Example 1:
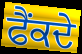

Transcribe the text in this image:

ਫੈਂਕਦੇ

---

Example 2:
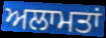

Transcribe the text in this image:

ਅਲਾਮਤਾਂ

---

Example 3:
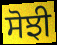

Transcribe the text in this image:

ਸੋਝੀ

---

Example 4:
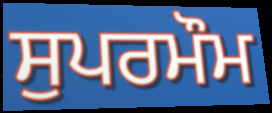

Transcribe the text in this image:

ਸੁਪਰਮੌਮ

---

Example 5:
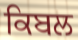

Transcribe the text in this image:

ਕਿਬਲ